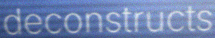
deconstructs